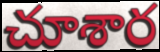
చూశార